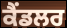
ਕੈਂਡਲਰ